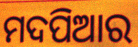
ମଦପିଆର